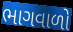
ભાગવાળો